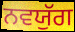
ਨਵਯੁੱਗ